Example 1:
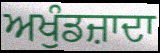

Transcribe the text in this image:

ਅਖੁੰਡਜ਼ਾਦਾ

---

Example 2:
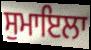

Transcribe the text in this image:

ਸੁਮਾਇਲਾ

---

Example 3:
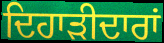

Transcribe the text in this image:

ਦਿਹਾੜੀਦਾਰਾਂ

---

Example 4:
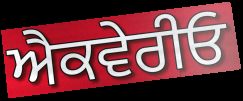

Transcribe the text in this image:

ਐਕਵੇਰੀਓ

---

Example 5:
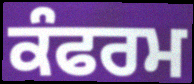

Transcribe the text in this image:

ਕੰਫਰਮ